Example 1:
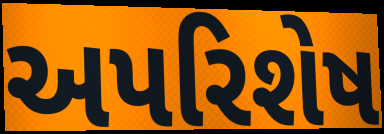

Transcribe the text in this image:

અપરિશેષ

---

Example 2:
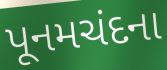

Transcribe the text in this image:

પૂનમચંદના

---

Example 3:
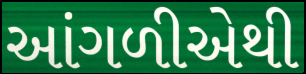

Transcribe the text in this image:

આંગળીએથી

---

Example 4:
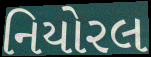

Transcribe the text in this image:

નિયોરલ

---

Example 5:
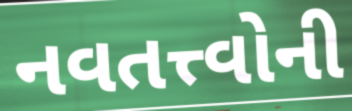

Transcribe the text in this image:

નવતત્ત્વોની